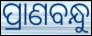
ପ୍ରାଣବନ୍ଧୁ